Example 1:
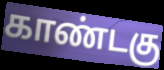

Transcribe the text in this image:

காண்டகு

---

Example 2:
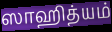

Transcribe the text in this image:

ஸாஹித்யம்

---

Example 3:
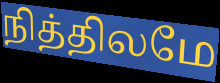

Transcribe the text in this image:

நித்திலமே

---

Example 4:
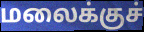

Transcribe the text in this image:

மலைக்குச்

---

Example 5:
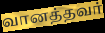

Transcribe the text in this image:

வானத்தவர்